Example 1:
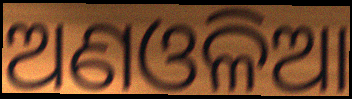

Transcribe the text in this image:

ଅଣଓଳିଆ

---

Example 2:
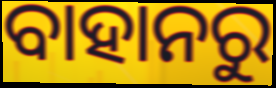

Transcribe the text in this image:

ବାହାନରୁ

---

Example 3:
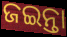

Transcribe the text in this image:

ଜଇନ୍ତା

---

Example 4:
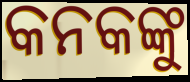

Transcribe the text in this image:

କନକଙ୍କୁ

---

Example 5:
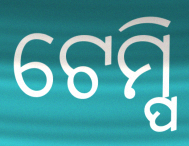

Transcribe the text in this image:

ଟେମ୍ପି